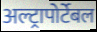
अल्ट्रापोर्टेबल